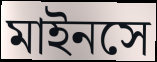
মাইনসে